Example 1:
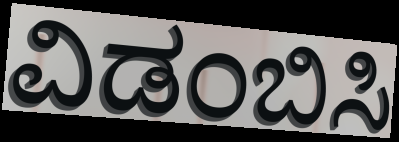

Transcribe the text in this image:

ವಿಡಂಬಿಸಿ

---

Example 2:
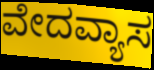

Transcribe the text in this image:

ವೇದವ್ಯಾಸ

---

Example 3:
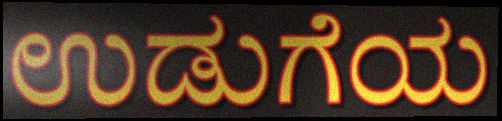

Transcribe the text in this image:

ಉಡುಗೆಯ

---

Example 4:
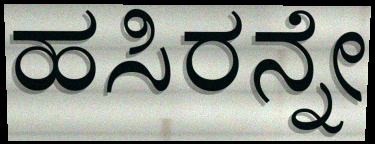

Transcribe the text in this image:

ಹಸಿರನ್ನೇ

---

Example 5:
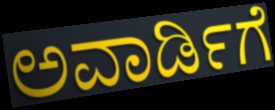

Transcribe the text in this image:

ಅವಾರ್ಡಿಗೆ